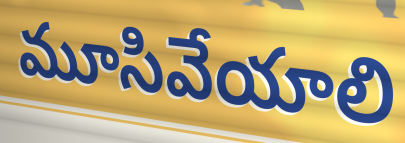
మూసివేయాలి